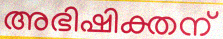
അഭിഷിക്തന്